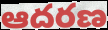
ఆదరణ